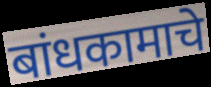
बांधकामाचे